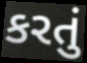
કરતું